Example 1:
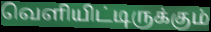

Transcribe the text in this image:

வெளியிட்டிருக்கும்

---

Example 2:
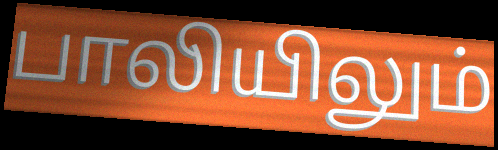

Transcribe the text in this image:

பாலியிலும்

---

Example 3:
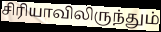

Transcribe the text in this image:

சிரியாவிலிருந்தும்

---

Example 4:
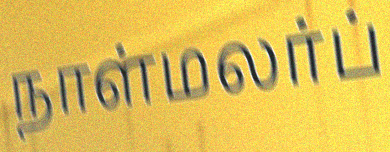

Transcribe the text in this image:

நாள்மலர்ப்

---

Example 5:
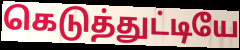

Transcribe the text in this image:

கெடுத்துட்டியே